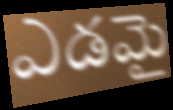
ఎడమై